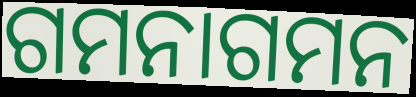
ଗମନାଗମନ